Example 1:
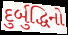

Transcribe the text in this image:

દુર્બુદ્ધિનો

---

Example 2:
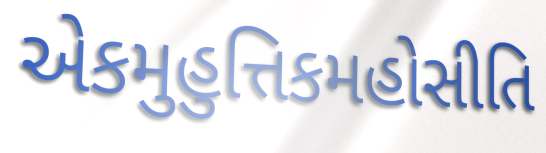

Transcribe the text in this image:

એકમુહુત્તિકમહોસીતિ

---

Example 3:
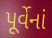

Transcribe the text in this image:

પૂર્વેનાં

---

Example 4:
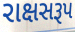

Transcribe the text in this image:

રાક્ષસરૂપ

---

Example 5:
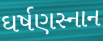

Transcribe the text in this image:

ઘર્ષણસ્નાન